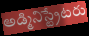
అడ్మినిస్ట్రేటరు